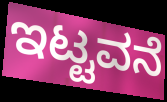
ಇಟ್ಟವನೆ